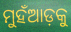
ମୁହଁଆଡ଼କୁ